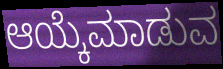
ಆಯ್ಕೆಮಾಡುವ